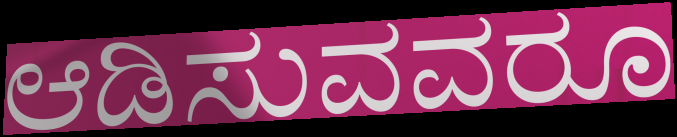
ಆಡಿಸುವವರೂ